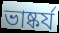
ভাষ্কর্য